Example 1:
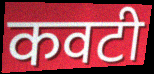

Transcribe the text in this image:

कवटी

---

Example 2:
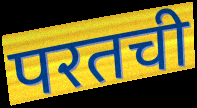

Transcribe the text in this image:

परतची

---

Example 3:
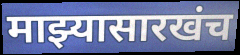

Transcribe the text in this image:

माझ्यासारखंच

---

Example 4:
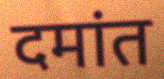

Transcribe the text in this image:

दमांत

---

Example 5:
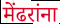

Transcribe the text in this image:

मेंढरांना